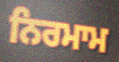
ਨਿਰਮਾਮ